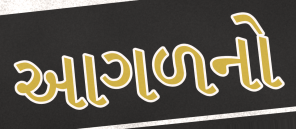
આગળનો